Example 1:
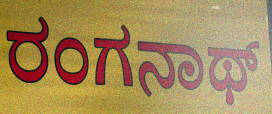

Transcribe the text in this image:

ರಂಗನಾಥ್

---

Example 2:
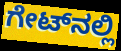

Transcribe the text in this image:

ಗೇಟ್‌ನಲ್ಲಿ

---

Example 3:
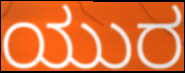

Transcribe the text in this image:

ಯುರ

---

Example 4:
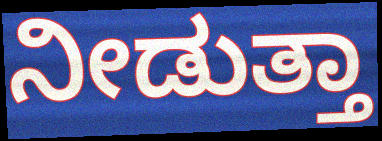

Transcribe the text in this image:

ನೀಡುತ್ತಾ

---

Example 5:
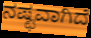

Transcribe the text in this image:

ನಷ್ಟವಾಗಿದೆ